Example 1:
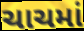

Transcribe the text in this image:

ચાચમાં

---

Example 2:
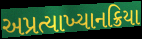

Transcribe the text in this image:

અપ્રત્યાખ્યાનક્રિયા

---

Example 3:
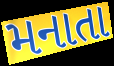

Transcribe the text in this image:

મનાતા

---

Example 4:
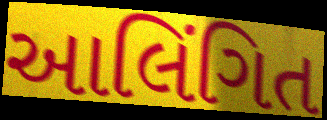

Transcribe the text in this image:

આલિંગિત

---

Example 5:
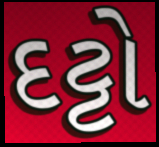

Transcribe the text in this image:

દટ્ટો